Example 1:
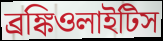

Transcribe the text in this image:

ব্রঙ্কিওলাইটিস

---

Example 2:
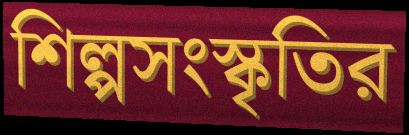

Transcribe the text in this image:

শিল্পসংস্কৃতির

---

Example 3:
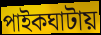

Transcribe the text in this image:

পাইকঘাটায়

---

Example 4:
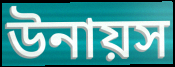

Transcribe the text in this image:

উনায়স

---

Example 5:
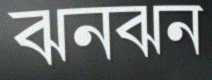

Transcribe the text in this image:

ঝনঝন